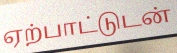
ஏற்பாட்டுடன்